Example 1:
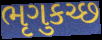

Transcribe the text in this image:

ભૃગુકચ્છ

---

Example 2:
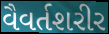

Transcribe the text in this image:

વૈવર્તશરીર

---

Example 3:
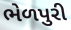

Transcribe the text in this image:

ભેળપુરી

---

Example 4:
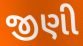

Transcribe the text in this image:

જીણી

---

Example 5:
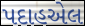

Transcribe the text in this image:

પદાહએલ